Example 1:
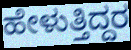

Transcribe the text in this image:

ಹೇಳುತ್ತಿದ್ದರ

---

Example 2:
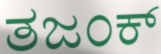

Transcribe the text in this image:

ತಜಂಕ್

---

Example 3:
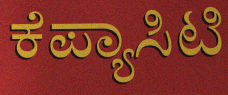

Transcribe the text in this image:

ಕೆಪ್ಯಾಸಿಟಿ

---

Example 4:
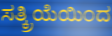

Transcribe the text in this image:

ಸತ್ಕ್ರಿಯೆಯಿಂದ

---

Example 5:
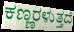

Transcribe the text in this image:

ಕಣ್ಣರಳುತ್ತದೆ